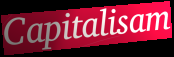
Capitalisam